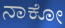
ನಾಕೋ